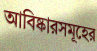
আবিষ্কারসমূহের